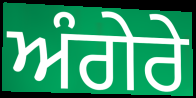
ਅੰਗੇਰੇ